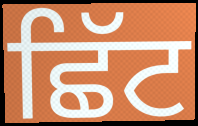
ਛਿੱਟ